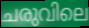
ചരുവിലെ